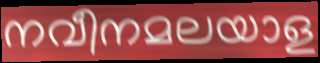
നവീനമലയാള